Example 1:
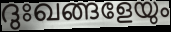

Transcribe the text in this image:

ദുഃഖങ്ങളേയും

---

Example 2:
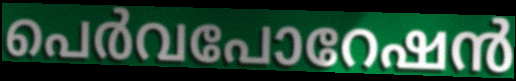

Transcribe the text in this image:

പെർവപോറേഷൻ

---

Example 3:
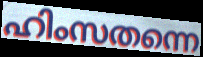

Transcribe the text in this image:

ഹിംസതന്നെ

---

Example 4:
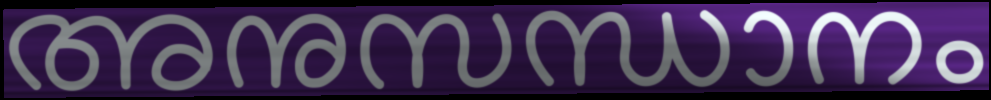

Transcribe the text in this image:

അനുസന്ധാനം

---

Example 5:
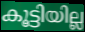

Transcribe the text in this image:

കൂട്ടിയില്ല